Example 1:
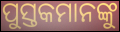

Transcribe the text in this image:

ପୁସ୍ତକମାନଙ୍କୁ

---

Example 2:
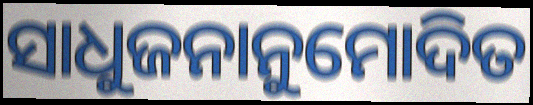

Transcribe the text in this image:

ସାଧୁଜନାନୁମୋଦିତ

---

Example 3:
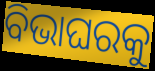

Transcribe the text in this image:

ବିଭାଘରକୁ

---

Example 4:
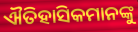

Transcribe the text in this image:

ଐତିହାସିକମାନଙ୍କୁ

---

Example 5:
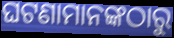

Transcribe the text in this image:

ଘଟଣାମାନଙ୍କଠାରୁ